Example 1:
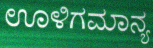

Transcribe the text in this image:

ಊಳಿಗಮಾನ್ಯ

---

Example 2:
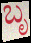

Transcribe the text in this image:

ಬೃ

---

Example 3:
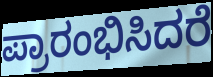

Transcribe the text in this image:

ಪ್ರಾರಂಭಿಸಿದರೆ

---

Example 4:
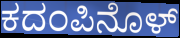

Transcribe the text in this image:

ಕದಂಪಿನೊಳ್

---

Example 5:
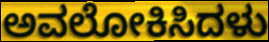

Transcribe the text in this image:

ಅವಲೋಕಿಸಿದಳು